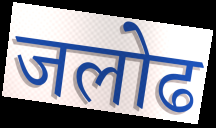
जलोढ